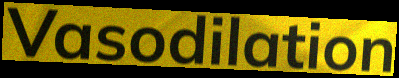
Vasodilation